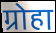
ग्रोहा